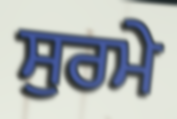
ਸੁਰਮੇ